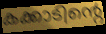
കക്കാടിന്റെ